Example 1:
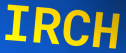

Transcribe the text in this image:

IRCH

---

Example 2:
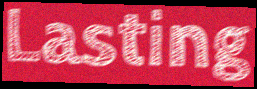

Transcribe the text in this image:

Lasting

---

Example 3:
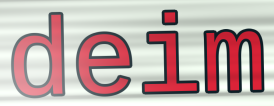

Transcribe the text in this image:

deim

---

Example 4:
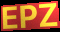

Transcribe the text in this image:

EPZ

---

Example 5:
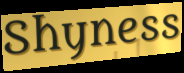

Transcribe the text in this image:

Shyness